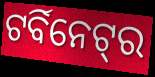
ଟର୍ବିନେଟ୍‌ର